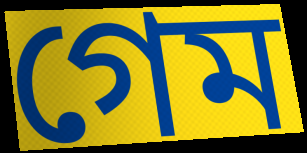
গেম